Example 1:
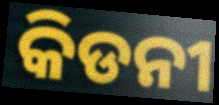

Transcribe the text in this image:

କିଡନୀ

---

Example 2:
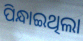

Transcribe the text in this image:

ପିନ୍ଧାଇଥିଲା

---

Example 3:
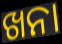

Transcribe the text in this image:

ଖନା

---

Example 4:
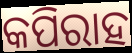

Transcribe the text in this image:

କପିରାହ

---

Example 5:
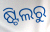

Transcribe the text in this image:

ଷ୍ଟିଲରୁ